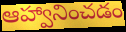
ఆహ్వానించడం